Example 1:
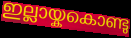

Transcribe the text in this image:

ഇല്ലായ്കകൊണ്ടു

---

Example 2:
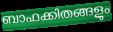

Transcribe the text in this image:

ബാഫക്കിതങ്ങളും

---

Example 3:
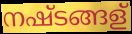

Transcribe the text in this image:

നഷ്ടങ്ങള്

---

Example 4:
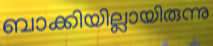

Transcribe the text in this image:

ബാക്കിയില്ലായിരുന്നു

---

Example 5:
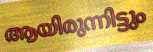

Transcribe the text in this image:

ആയിരുന്നിട്ടും